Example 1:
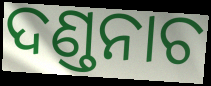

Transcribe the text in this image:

ଦଣ୍ଡନାଚ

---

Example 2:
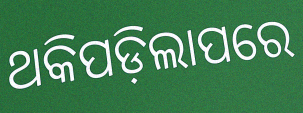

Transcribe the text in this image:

ଥକିପଡ଼ିଲାପରେ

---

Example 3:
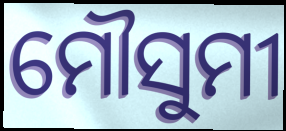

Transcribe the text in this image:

ମୌସୁମୀ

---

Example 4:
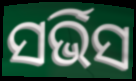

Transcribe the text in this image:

ସର୍ଭିସ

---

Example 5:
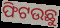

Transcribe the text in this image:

ଫିଟଉଛୁ